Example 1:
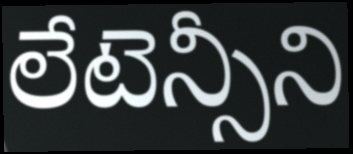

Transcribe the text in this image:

లేటెన్సీని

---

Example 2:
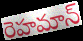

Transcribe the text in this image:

రెహమాన్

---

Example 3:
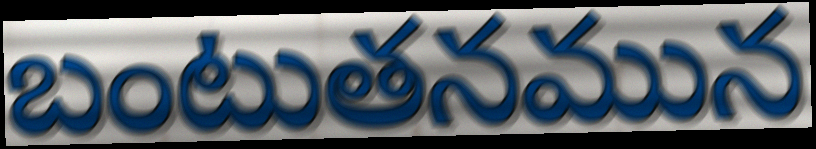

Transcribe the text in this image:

బంటుతనమున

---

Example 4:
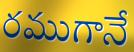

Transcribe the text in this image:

రముగానే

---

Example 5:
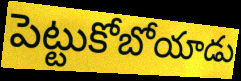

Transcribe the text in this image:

పెట్టుకోబోయాడు